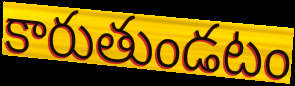
కారుతుండటం